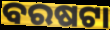
ବରଷଟା